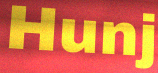
Hunj